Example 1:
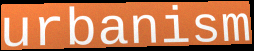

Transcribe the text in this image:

urbanism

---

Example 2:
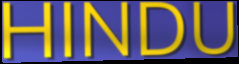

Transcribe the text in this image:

HINDU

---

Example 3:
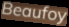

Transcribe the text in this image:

Beaufoy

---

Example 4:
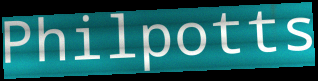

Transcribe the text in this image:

Philpotts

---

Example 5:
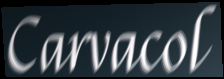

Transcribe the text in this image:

Carvacol